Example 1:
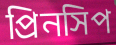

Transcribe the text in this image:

প্রিনসিপ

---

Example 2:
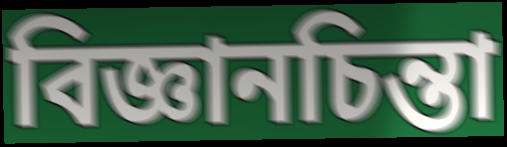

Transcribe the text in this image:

বিজ্ঞানচিন্তা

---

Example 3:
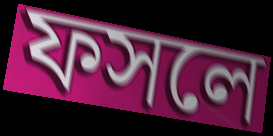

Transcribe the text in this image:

ফসলে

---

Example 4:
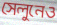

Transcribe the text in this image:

সেলুনেও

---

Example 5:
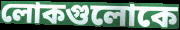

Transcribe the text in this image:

লোকগুলোকে